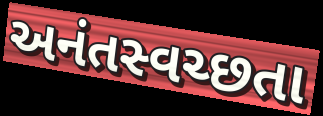
અનંતસ્વચ્છતા